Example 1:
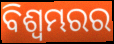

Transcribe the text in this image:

ବିଶ୍ଵମ୍ଭରର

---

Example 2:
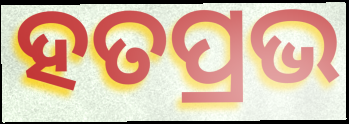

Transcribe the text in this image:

ହତପ୍ରଭ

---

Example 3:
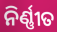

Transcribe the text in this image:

ନିର୍ଣ୍ଣୀତ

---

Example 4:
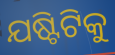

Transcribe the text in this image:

ଯଷ୍ଟିଟିକୁ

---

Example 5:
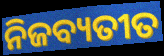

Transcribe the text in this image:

ନିଜବ୍ୟତୀତ